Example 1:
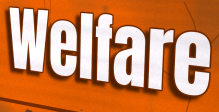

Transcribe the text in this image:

Welfare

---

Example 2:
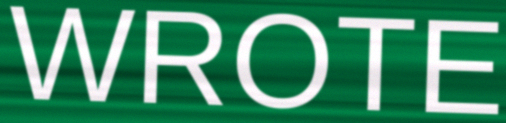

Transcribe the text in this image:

WROTE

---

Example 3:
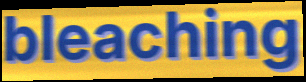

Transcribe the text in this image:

bleaching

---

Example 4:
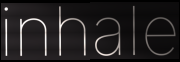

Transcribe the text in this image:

inhale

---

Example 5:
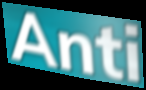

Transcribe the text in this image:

Anti